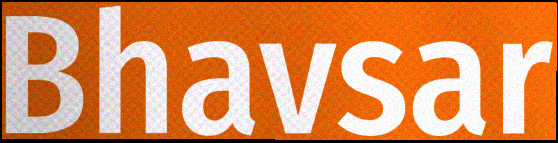
Bhavsar